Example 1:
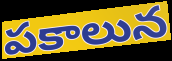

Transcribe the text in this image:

పకాలున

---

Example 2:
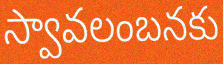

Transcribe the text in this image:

స్వావలంబనకు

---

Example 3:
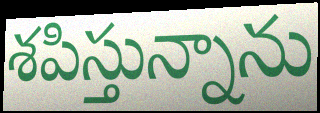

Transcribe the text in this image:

శపిస్తున్నాను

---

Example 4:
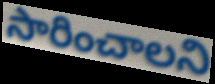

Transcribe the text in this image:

సారించాలని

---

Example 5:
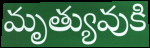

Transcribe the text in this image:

మృత్యువుకి